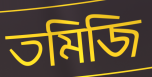
তমিজি